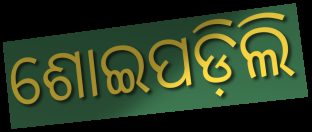
ଶୋଇପଡ଼ିଲି